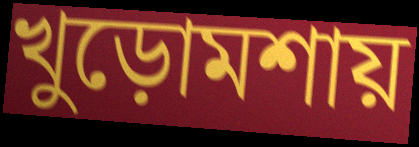
খুড়োমশায়